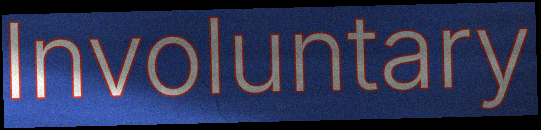
Involuntary